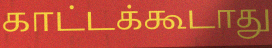
காட்டக்கூடாது